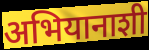
अभियानाशी